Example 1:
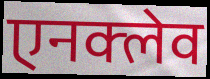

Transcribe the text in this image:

एनक्‍लेव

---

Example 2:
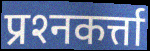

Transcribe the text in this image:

प्रश्नकर्त्ता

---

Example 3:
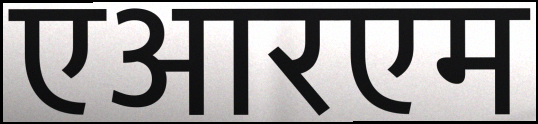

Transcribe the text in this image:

एआरएम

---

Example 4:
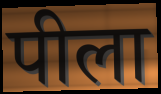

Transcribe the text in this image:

पीला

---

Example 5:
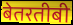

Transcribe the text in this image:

बेतरतीबी